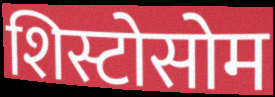
शिस्टोसोम